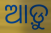
ଆଡ଼ୁ